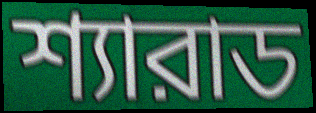
শ্যারাড